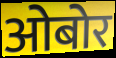
ओबोर